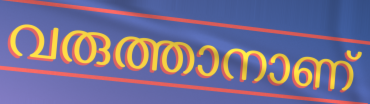
വരുത്താനാണ്